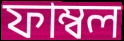
ফাম্বল